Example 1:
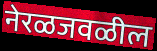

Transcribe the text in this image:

नेरळजवळील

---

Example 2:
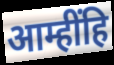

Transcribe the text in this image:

आम्हींहि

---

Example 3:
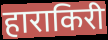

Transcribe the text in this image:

हाराकिरी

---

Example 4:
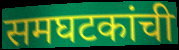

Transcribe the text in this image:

समघटकांची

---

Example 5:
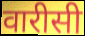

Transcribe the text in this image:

वारीसी